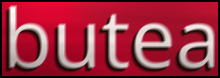
butea